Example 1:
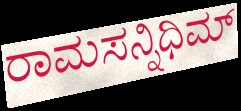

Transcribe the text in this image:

ರಾಮಸನ್ನಿಧಿಮ್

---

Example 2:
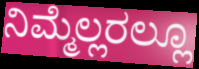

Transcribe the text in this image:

ನಿಮ್ಮೆಲ್ಲರಲ್ಲೂ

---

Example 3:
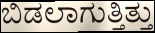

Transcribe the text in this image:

ಬಿಡಲಾಗುತ್ತಿತ್ತು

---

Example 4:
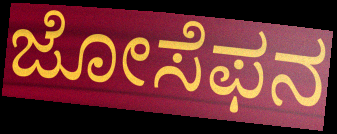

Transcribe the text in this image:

ಜೋಸೆಫನ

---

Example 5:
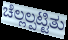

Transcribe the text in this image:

ಚೆಲ್ಲಲ್ಪಟ್ಟಿತು